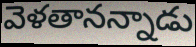
వెళతానన్నాడు